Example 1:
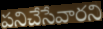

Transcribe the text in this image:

పనిచేసేవారని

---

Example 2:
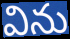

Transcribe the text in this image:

విను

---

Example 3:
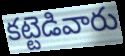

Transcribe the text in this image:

కట్టెడివారు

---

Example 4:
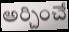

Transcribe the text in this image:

అర్చించే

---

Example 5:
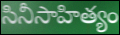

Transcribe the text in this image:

సినీసాహిత్యం